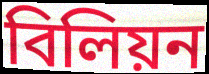
বিলিয়ন